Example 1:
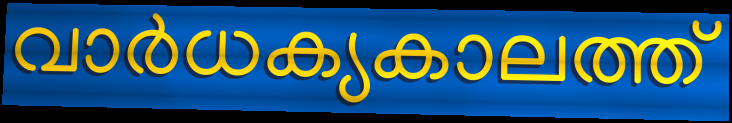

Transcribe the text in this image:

വാർധക്യകാലത്ത്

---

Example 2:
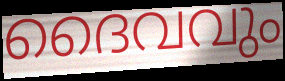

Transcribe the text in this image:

ദൈവവും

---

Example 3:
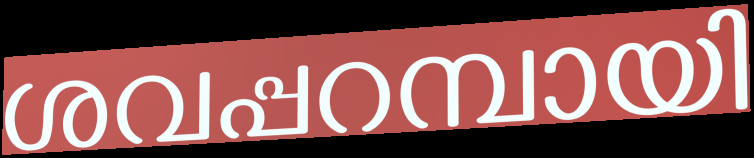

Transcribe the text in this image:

ശവപ്പറമ്പായി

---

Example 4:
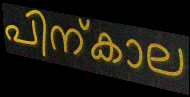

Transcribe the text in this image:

പിന്കാല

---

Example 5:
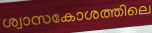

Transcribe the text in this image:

ശ്വാസകോശത്തിലെ